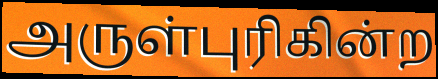
அருள்புரிகின்ற